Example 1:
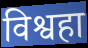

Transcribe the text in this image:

विश्वहा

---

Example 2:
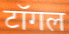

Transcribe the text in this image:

टॉगल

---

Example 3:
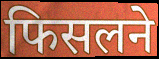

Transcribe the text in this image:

फिसलने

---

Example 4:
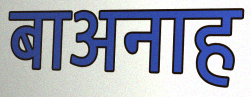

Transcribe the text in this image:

बाअनाह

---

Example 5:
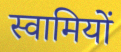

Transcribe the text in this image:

स्वामियों